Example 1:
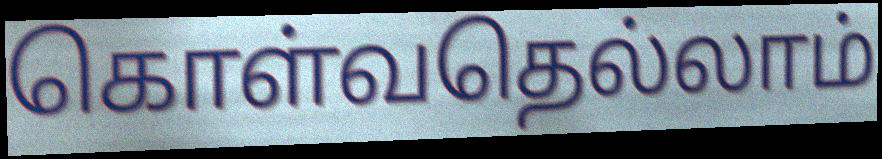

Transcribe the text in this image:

கொள்வதெல்லாம்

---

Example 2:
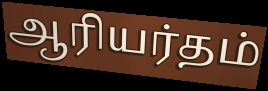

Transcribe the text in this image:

ஆரியர்தம்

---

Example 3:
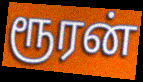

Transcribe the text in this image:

ரூரன்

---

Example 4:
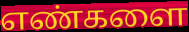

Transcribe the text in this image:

எண்களை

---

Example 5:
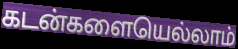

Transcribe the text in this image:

கடன்களையெல்லாம்